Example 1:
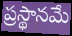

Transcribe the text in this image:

ప్రస్థానమే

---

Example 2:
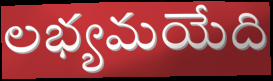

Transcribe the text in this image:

లభ్యమయేది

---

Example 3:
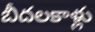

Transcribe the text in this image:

బీదలకాళ్లు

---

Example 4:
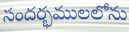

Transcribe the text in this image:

సందర్భములలోను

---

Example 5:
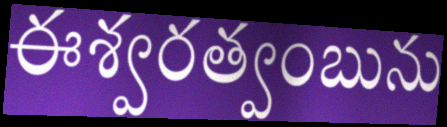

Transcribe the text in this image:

ఈశ్వరత్వంబును